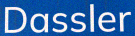
Dassler